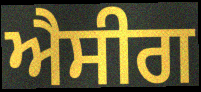
ਐਸੀਗ